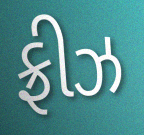
ફ્રીઝ